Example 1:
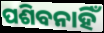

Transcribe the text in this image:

ପଶିବନାହିଁ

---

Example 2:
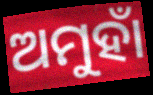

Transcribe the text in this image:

ଅମୁହାଁ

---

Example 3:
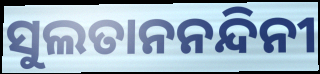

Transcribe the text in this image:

ସୁଲତାନନନ୍ଦିନୀ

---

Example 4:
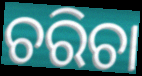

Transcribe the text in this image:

ଚରିଚା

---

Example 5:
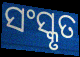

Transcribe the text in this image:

ସଂସ୍କୃତ